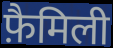
फ़ैमिली